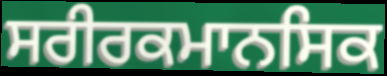
ਸਰੀਰਕਮਾਨਸਿਕ